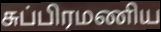
சுப்பிரமணிய